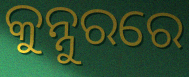
କୁନ୍ନୁରରେ